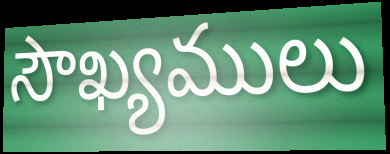
సౌఖ్యములు